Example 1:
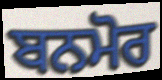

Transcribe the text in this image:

ਬਨਮੋਰ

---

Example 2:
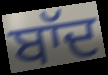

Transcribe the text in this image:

ਬਾੱਦ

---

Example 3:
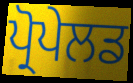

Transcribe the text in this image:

ਪ੍ਰੋਪੇਲਡ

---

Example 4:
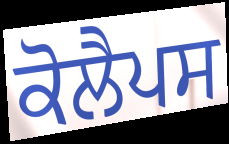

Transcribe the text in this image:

ਕੋਲੈਪਸ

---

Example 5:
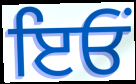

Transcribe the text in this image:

ਇਓਂ